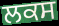
ਲਕਸ